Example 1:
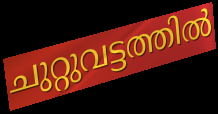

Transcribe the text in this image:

ചുറ്റുവട്ടത്തിൽ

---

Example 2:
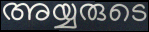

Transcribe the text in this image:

അയ്യരുടെ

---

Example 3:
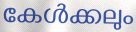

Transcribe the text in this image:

കേൾക്കലും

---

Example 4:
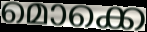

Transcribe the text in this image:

മൊക്കെ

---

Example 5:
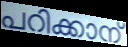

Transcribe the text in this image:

പറിക്കാന്